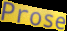
Prose